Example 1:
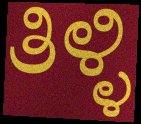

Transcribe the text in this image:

ತಿಳ್ಳಿ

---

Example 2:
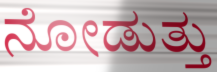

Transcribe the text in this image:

ನೋಡುತ್ತು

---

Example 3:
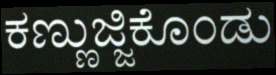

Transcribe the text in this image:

ಕಣ್ಣುಜ್ಜಿಕೊಂಡು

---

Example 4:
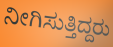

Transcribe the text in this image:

ನೀಗಿಸುತ್ತಿದ್ದರು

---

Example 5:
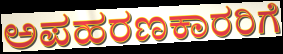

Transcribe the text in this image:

ಅಪಹರಣಕಾರರಿಗೆ